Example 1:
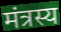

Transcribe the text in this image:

मंत्रस्य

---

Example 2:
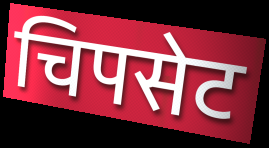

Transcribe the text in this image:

चिपसेट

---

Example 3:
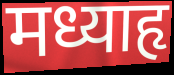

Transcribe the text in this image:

मध्याहृ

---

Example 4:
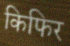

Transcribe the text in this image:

किफिर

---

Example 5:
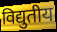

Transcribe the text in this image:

विद्युतीय